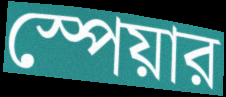
স্পেয়ার